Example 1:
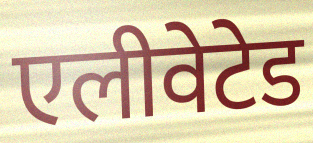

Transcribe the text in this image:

एलीवेटेड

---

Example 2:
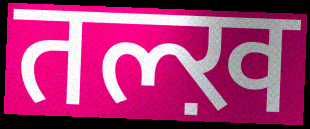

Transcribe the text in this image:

तल्ख़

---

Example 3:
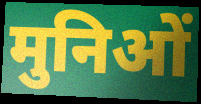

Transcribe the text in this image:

मुनिओं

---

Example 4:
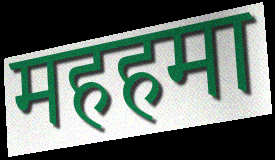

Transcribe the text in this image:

महहमा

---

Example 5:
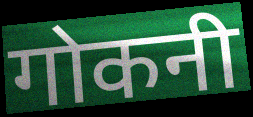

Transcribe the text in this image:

गोकनी